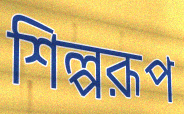
শিল্পরূপ